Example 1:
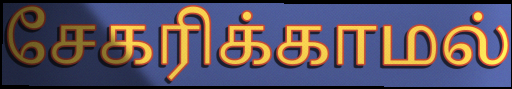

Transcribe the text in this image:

சேகரிக்காமல்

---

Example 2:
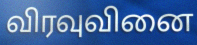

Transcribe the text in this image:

விரவுவினை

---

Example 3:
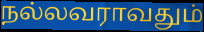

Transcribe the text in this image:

நல்லவராவதும்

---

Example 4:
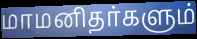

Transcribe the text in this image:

மாமனிதர்களும்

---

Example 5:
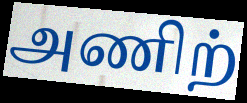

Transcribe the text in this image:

அணிற்